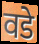
वडे